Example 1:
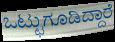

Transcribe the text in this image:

ಒಟ್ಟುಗೂಡಿದ್ದಾರೆ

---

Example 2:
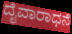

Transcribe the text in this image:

ದೈವಾರಾಧನೆ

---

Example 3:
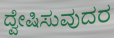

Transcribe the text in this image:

ದ್ವೇಷಿಸುವುದರ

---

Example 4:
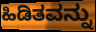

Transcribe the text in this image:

ಹಿಡಿತವನ್ನು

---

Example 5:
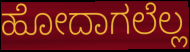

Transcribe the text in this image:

ಹೋದಾಗಲೆಲ್ಲ